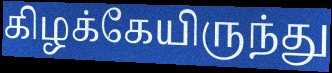
கிழக்கேயிருந்து